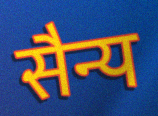
सैन्‍य